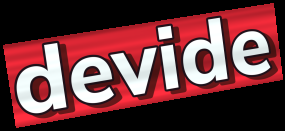
devide